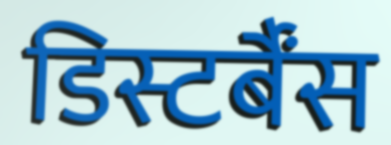
डिस्टर्बैंस